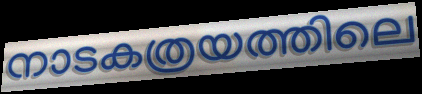
നാടകത്രയത്തിലെ